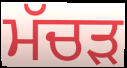
ਮੱਚੜ